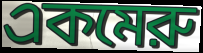
একমেৰু